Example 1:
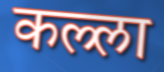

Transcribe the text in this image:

कल्ला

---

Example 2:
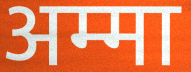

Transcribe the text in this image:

अम्मा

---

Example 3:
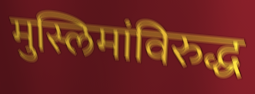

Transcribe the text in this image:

मुस्लिमांविरुद्ध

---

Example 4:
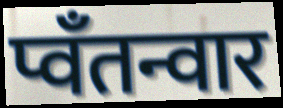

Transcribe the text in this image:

प्वॅंतन्वार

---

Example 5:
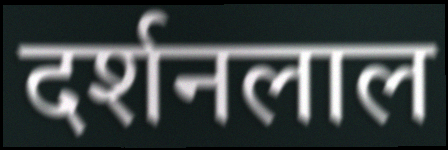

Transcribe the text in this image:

दर्शनलाल